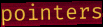
pointers